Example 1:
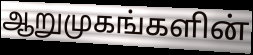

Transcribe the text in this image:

ஆறுமுகங்களின்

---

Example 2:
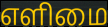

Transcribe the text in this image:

எளிமை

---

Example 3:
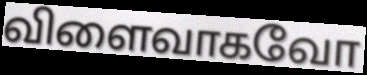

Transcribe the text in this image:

விளைவாகவோ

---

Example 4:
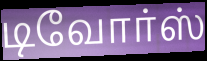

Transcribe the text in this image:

டிவோர்ஸ்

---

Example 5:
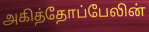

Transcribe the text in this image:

அகித்தோப்பேலின்